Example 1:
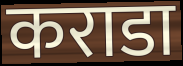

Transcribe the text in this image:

कराडा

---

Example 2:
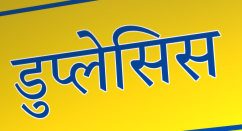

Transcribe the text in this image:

डुप्लेसिस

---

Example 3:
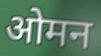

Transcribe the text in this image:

ओमन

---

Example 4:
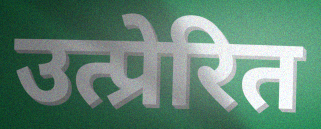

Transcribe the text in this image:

उत्प्रेरित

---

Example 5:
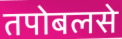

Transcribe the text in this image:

तपोबलसे